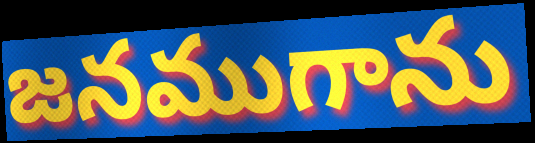
జనముగాను